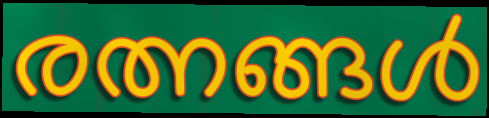
രത്നങ്ങൾ